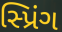
સ્પ્રિંગ